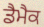
ਡੈਮੈਕ